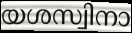
യശസ്വിനാ